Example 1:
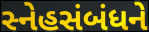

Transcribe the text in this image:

સ્નેહસંબંધને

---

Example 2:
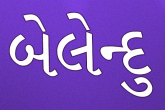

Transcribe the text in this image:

બેલેન્દુ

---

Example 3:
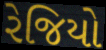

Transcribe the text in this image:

રેજિયો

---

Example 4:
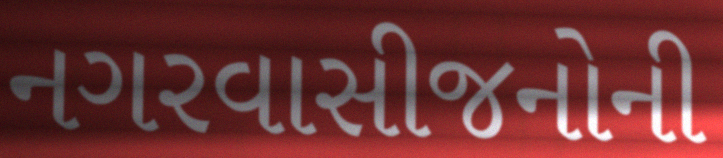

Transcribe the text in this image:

નગરવાસીજનોની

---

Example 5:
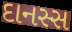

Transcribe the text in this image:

દાનસ્સ